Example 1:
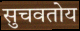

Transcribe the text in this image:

सुचवतोय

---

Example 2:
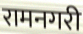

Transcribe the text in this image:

रामनगरी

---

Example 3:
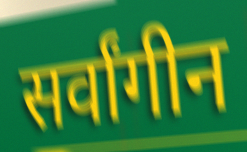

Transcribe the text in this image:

सर्वांगीन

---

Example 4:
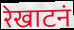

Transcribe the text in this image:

रेखाटनं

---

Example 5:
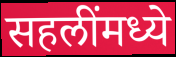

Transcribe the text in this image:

सहलींमध्ये